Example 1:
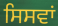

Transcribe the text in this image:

ਸਿਸਵਾਂ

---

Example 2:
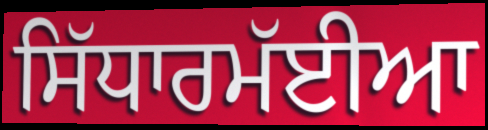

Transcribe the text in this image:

ਸਿੱਧਾਰਮੱਈਆ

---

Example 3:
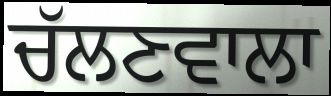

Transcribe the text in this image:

ਚੱਲਣਵਾਲਾ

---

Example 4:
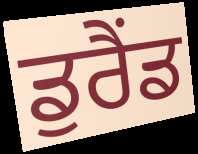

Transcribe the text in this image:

ਡੁਰੈਂਡ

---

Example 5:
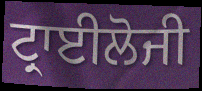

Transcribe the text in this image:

ਟ੍ਰਾਈਲੋਜੀ